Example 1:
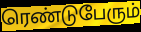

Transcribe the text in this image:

ரெண்டுபேரும்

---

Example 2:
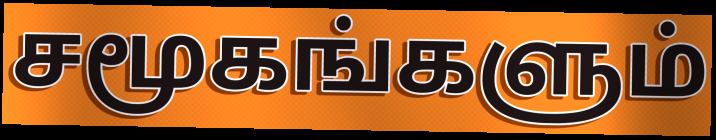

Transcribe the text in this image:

சமூகங்களும்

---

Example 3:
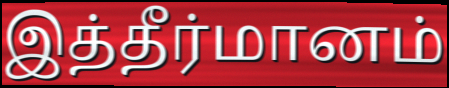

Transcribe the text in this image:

இத்தீர்மானம்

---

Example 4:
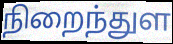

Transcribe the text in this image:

நிறைந்துள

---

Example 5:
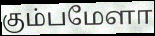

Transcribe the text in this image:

கும்பமேளா